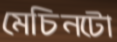
মেচিনটো